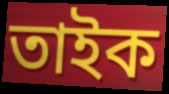
তাইক